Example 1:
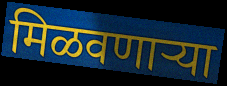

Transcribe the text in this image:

मिळवणाऱ्या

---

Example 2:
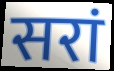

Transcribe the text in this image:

सरां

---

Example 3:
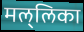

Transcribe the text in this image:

मल्लिका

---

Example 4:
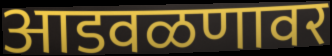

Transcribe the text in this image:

आडवळणावर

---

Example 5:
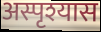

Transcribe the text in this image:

अस्पृश्यास